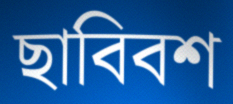
ছাবিবশ